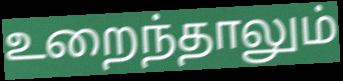
உறைந்தாலும்